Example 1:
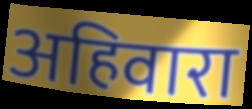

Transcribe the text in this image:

अहिवारा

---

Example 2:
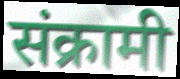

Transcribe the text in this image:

संक्रामी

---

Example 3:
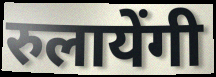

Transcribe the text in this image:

रुलायेंगी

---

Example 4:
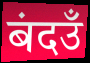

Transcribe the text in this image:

बंदउँ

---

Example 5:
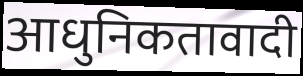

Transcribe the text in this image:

आधुनिकतावादी